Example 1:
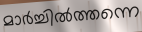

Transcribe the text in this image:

മാർച്ചിൽത്തന്നെ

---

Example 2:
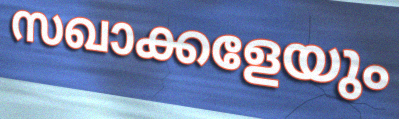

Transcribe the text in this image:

സഖാക്കളേയും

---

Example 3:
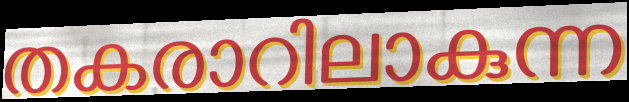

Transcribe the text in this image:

തകരാറിലാകുന്ന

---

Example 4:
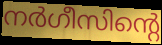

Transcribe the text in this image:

നർഗീസിന്റെ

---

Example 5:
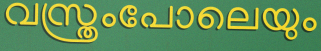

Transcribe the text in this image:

വസ്ത്രംപോലെയും